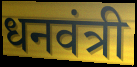
धनवंत्री